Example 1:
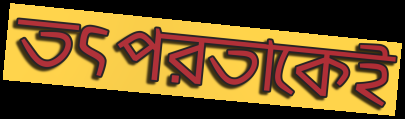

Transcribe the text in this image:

তৎপরতাকেই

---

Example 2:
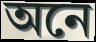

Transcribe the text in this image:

অনে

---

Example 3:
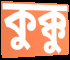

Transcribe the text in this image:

কুক্কু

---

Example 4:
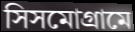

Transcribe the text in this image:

সিসমোগ্রামে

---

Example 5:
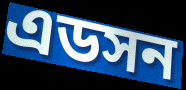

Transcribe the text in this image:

এডসন